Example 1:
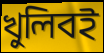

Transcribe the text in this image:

খুলিবই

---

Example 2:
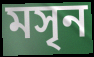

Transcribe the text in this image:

মসৃন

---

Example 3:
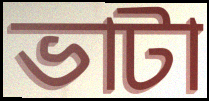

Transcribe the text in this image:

ভাটা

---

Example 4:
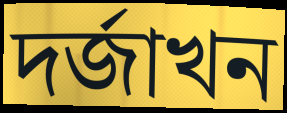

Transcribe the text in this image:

দৰ্জাখন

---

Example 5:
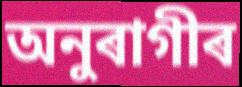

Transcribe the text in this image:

অনুৰাগীৰ